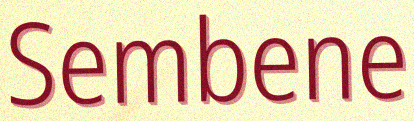
Sembene